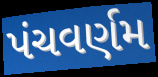
પંચવર્ણમ